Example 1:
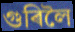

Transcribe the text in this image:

গুৰিলৈ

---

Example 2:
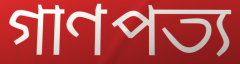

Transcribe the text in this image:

গাণপত্য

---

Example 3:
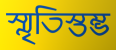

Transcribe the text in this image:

স্মৃতিস্তম্ভ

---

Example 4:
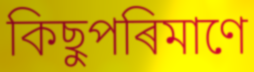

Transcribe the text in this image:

কিছুপৰিমাণে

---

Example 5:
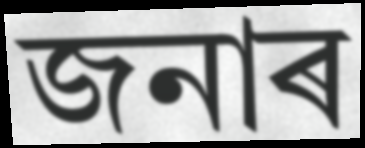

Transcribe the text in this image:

জনাৰ